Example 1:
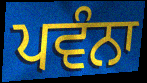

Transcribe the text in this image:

ਪਵੰਨਾ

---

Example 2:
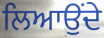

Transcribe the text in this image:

ਲਿਆਉਂਦੇ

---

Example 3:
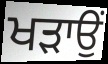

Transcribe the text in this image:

ਖੜਾਉਂ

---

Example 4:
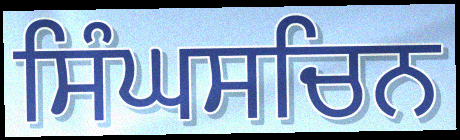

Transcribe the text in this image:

ਸਿੰਘਸਚਿਨ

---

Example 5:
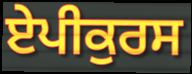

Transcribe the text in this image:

ਏਪੀਕੁਰਸ